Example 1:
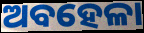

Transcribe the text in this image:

ଅବହେଳା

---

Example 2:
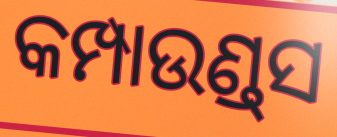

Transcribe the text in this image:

କମ୍ପାଉଣ୍ଡ୍‌ସ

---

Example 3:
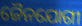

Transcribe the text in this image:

ଜୈନଯୋଗୀ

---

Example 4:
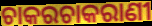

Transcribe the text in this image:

ଚାକରଚାକରାଣୀ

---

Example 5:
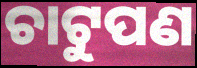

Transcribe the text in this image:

ଚାଟୁପଣ